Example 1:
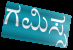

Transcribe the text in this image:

ಗಮಿಸ್ಸ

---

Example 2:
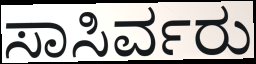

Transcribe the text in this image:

ಸಾಸಿರ್ವರು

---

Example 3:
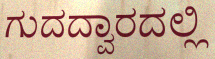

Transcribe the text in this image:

ಗುದದ್ವಾರದಲ್ಲಿ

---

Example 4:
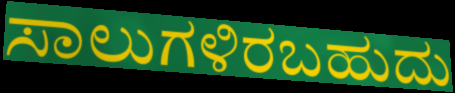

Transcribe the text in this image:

ಸಾಲುಗಳಿರಬಹುದು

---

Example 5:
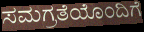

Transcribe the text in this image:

ಸಮಗ್ರತೆಯೊಂದಿಗೆ